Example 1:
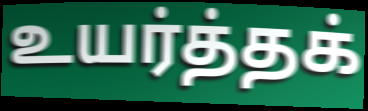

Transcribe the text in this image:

உயர்த்தக்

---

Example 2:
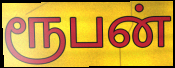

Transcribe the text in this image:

ரூபன்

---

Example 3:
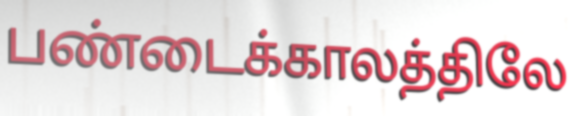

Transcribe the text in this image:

பண்டைக்காலத்திலே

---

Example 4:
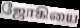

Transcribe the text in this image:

ஜோகியை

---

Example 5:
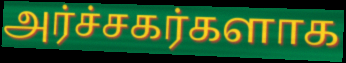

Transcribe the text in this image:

அர்ச்சகர்களாக